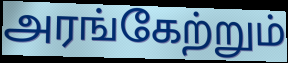
அரங்கேற்றும்